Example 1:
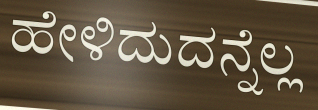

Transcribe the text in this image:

ಹೇಳಿದುದನ್ನೆಲ್ಲ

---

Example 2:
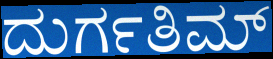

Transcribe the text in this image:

ದುರ್ಗತಿಮ್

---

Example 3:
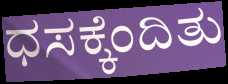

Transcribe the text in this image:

ಧಸಕ್ಕೆಂದಿತು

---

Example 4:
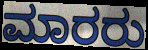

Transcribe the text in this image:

ಮಾರರು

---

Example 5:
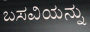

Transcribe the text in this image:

ಬಸವಿಯನ್ನು